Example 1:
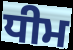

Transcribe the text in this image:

ਧੀਮ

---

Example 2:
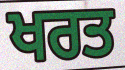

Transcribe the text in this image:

ਖਰਤ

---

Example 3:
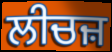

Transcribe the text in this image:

ਲੀਚਜ਼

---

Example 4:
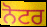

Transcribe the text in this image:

ਨੋਟਰ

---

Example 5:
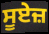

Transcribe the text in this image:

ਸੂਏਜ਼